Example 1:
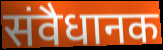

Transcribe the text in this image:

संवैधानक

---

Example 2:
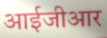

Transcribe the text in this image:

आईजीआर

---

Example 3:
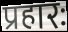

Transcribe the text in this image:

प्रहारः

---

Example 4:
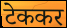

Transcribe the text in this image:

टेककर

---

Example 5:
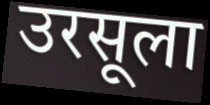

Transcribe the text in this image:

उरसूला